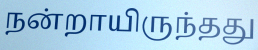
நன்றாயிருந்தது